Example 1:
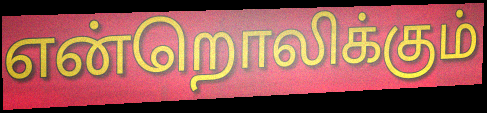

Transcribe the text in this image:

என்றொலிக்கும்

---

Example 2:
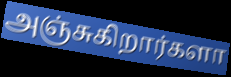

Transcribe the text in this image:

அஞ்சுகிறார்களா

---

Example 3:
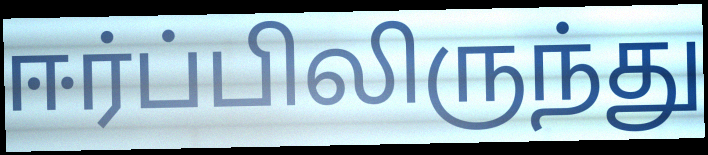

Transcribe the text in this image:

ஈர்ப்பிலிருந்து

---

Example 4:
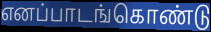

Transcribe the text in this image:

எனப்பாடங்கொண்டு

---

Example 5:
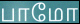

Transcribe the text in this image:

பாமோ